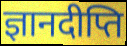
ज्ञानदीप्ति